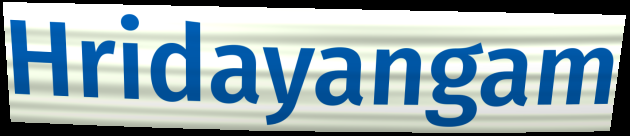
Hridayangam